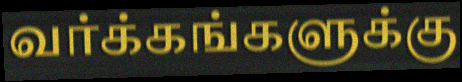
வர்க்கங்களுக்கு